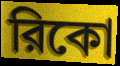
রিকো